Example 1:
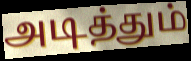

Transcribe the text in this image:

அடித்தும்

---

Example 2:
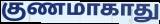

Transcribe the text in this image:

குணமாகாது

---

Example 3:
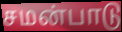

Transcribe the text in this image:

சமன்பாடு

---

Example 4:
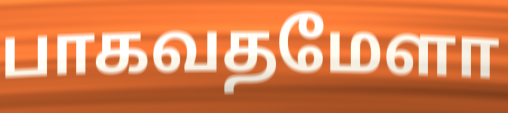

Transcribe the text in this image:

பாகவதமேளா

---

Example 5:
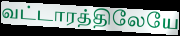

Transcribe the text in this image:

வட்டாரத்திலேயே